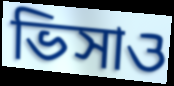
ভিসাও